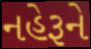
નહેરૂને